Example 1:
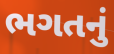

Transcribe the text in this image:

ભગતનું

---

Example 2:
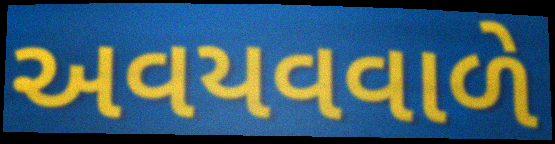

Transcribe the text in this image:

અવયવવાળે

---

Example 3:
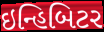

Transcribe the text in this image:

ઇન્હિબિટર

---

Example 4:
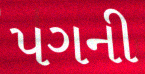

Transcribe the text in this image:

પગની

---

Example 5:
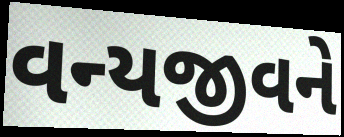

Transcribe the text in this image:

વન્યજીવને